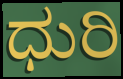
ಧುರಿ